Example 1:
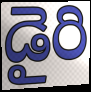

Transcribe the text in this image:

డైరి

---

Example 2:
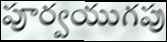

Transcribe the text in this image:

పూర్వయుగపు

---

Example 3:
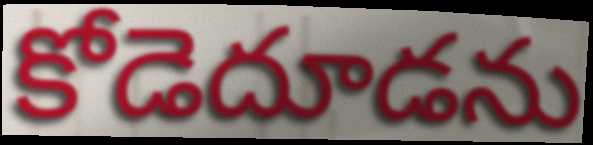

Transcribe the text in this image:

కోడెదూడను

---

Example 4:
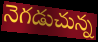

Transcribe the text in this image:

నెగడుచున్న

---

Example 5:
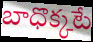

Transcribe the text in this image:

బాధొక్కటే